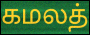
கமலத்